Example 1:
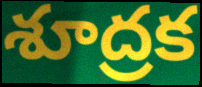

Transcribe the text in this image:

శూద్రక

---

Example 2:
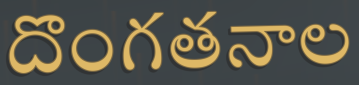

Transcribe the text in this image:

దొంగతనాల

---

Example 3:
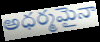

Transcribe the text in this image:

అధర్మమైనా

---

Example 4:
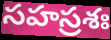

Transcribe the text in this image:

సహస్రశః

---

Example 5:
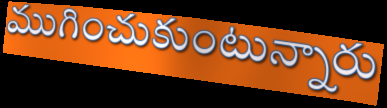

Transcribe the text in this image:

ముగించుకుంటున్నారు